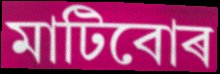
মাটিবোৰ